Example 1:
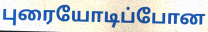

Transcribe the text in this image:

புரையோடிப்போன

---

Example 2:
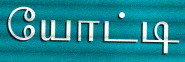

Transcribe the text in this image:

யோட்டி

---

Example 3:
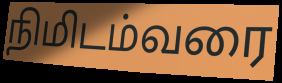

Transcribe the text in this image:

நிமிடம்வரை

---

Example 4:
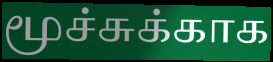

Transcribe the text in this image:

மூச்சுக்காக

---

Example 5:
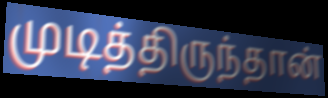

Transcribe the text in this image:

முடித்திருந்தான்